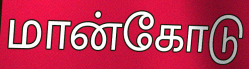
மான்கோடு